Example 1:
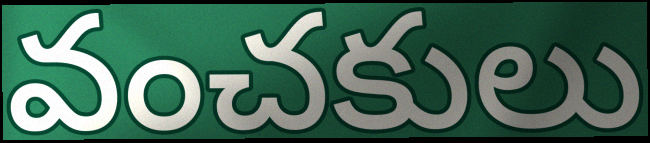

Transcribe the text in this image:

వంచకులు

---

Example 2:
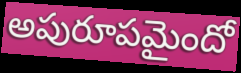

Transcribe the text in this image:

అపురూపమైందో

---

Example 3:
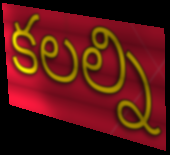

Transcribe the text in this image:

కలల్ని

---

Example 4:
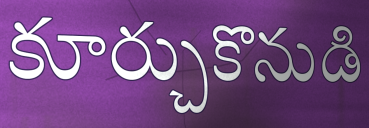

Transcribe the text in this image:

కూర్చుకొనుడి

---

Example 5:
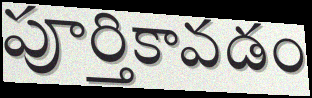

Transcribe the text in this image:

పూర్తికావడం